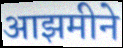
आझमीने